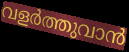
വളർത്തുവാൻ